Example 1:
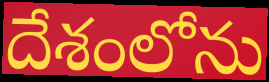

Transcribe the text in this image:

దేశంలోను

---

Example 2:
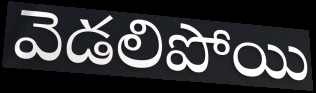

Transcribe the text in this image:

వెడలిపోయి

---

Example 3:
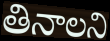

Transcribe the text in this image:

తినాలని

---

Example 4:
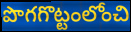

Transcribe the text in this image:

పొగగొట్టంలోంచి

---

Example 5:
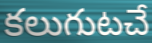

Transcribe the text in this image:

కలుగుటచే